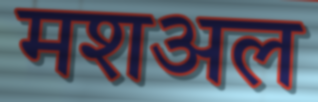
मशअल